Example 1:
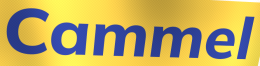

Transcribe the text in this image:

Cammel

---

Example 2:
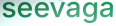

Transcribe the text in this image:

seevaga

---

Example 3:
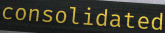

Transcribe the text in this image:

consolidated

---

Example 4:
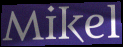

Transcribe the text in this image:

Mikel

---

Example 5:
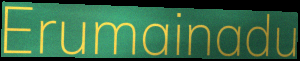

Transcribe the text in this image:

Erumainadu